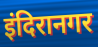
इंदिरानगर